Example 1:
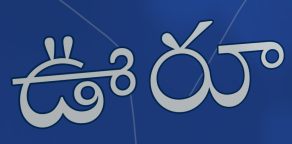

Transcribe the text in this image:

ఊరూ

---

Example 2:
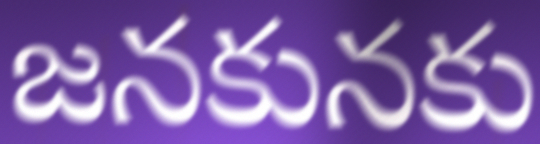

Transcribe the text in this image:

జనకునకు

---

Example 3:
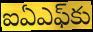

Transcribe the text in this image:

ఐఏఎఫ్‌కు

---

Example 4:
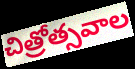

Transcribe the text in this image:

చిత్రోత్సవాల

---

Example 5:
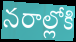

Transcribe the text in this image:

నరాల్లోకి